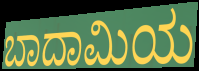
ಬಾದಾಮಿಯ